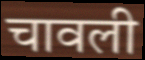
चावली